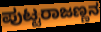
ಪುಟ್ಟರಾಜಣ್ಣನ